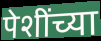
पेशींच्या